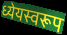
ध्येयस्वरूप